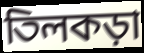
তিলকড়া